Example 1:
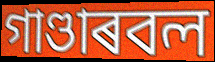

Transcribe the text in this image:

গাণ্ডাৰবল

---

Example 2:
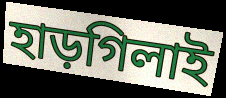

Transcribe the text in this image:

হাড়গিলাই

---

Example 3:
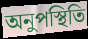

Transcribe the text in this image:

অনুপস্থিতি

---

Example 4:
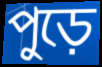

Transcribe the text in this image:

পুড়ে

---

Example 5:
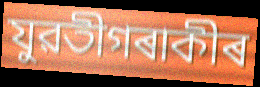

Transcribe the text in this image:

যুৱতীগৰাকীৰ